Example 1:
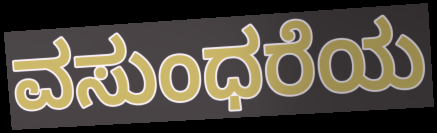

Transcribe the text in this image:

ವಸುಂಧರೆಯ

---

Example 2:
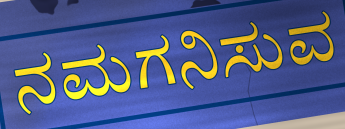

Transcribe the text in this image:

ನಮಗನಿಸುವ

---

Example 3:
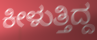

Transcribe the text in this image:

ಕೀಳುತ್ತಿದ್ದ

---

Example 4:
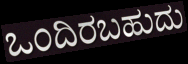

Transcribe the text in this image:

ಒಂದಿರಬಹುದು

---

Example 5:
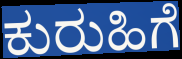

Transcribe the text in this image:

ಕುರುಹಿಗೆ